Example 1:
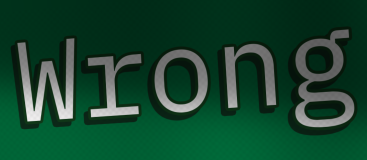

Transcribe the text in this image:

Wrong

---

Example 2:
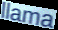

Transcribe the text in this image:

llama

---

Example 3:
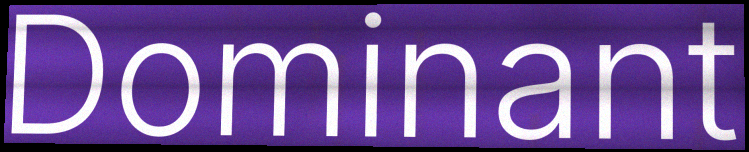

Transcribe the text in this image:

Dominant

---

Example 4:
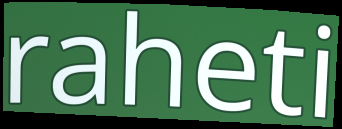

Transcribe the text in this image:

raheti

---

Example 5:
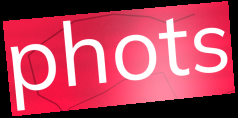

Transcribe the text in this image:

phots